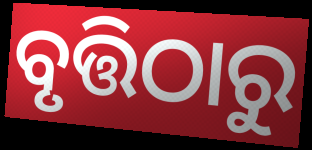
ବୃତ୍ତିଠାରୁ